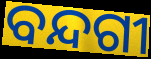
ବନ୍ଦଗୀ